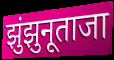
झुंझुनूताजा